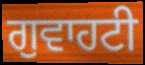
ਗੁਵਾਹਟੀ